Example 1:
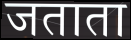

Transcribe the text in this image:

जताता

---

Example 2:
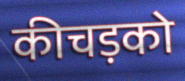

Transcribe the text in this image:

कीचड़को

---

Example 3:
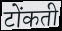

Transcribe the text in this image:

टोंकती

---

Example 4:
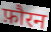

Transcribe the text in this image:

फ़ौरन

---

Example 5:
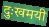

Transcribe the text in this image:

दुःखमयी